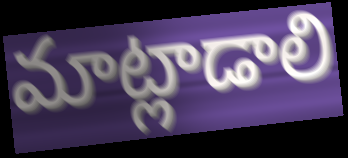
మాట్లాడాలి